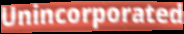
Unincorporated